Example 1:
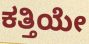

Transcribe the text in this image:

ಕತ್ತಿಯೇ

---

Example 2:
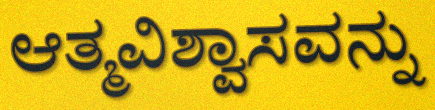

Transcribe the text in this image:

ಆತ್ಮವಿಶ್ವಾಸವನ್ನು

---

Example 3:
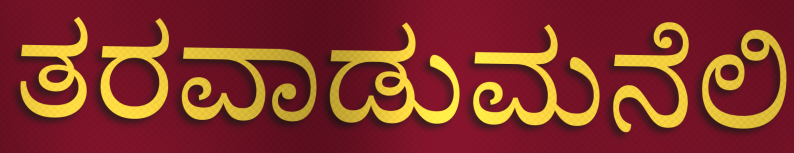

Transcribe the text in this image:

ತರವಾಡುಮನೆಲಿ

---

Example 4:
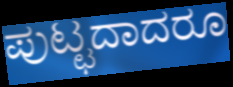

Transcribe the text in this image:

ಪುಟ್ಟದಾದರೂ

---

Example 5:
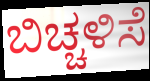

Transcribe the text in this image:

ಬಿಚ್ಚಳಿಸೆ